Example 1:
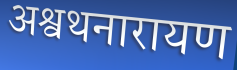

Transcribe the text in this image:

अश्वथनारायण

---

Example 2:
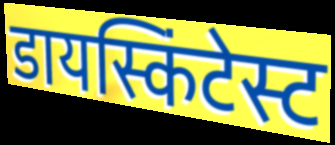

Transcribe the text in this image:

डायस्किंटेस्ट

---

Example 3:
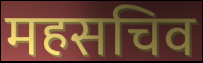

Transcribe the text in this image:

महसचिव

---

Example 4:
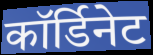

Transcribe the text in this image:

कॉर्डिनेट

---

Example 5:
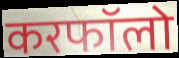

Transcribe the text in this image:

करफॉलो